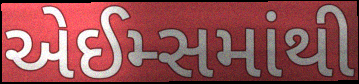
એઈમ્સમાંથી